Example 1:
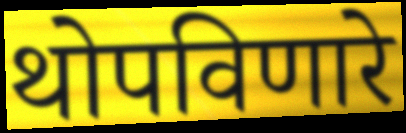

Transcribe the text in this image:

थोपविणारे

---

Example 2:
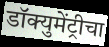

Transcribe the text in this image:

डॉक्युमेंट्रीचा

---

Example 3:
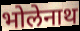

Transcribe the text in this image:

भोलेनाथ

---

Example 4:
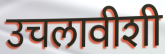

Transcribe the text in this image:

उचलावीशी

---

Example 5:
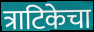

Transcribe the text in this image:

त्राटिकेचा